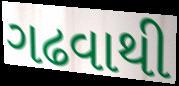
ગઢવાથી